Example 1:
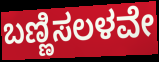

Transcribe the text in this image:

ಬಣ್ಣಿಸಲಳವೇ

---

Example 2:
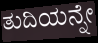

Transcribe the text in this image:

ತುದಿಯನ್ನೇ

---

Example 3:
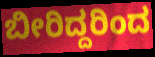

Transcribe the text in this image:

ಬೀರಿದ್ದರಿಂದ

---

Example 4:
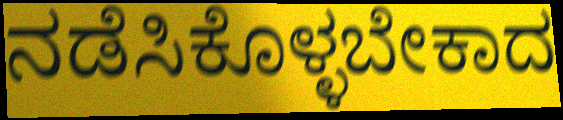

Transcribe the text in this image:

ನಡೆಸಿಕೊಳ್ಳಬೇಕಾದ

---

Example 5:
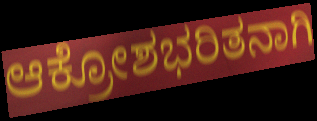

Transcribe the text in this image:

ಆಕ್ರೋಶಭರಿತನಾಗಿ